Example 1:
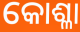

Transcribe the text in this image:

କୋଶ୍ଳା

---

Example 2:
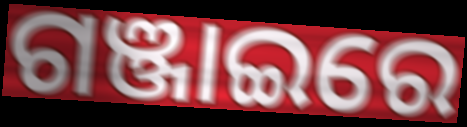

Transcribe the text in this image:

ଗଞ୍ଜାଇରେ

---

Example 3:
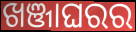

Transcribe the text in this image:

ଖଞ୍ଜାଘରର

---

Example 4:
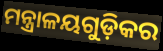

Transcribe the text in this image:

ମନ୍ତ୍ରାଳୟଗୁଡ଼ିକର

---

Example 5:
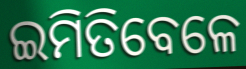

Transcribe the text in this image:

ଇମିତିବେଳେ